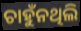
ଚାହୁଁନଥିଲି